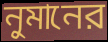
নুমানের